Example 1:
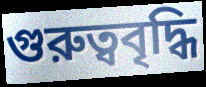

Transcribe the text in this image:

গুরুত্ববৃদ্ধি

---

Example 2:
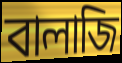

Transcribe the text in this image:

বালাজি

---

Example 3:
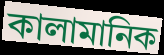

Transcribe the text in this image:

কালামানিক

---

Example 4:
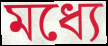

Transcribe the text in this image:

মধ্যে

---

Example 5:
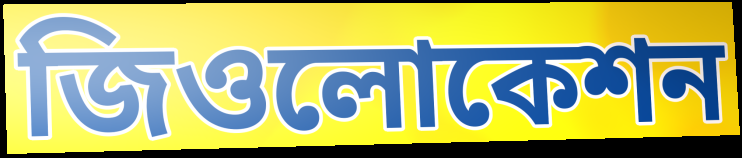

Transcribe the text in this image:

জিওলোকেশন